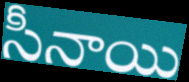
సీనాయి